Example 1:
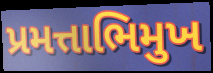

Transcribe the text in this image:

પ્રમત્તાભિમુખ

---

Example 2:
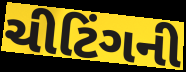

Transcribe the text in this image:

ચીટિંગની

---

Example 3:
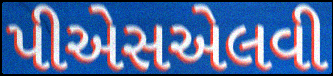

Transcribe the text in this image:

પીએસએલવી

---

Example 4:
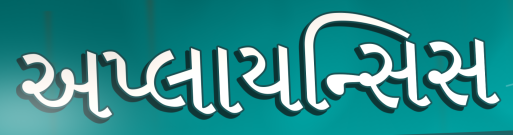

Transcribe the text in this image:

અપ્લાયન્સિસ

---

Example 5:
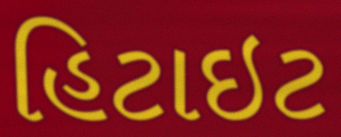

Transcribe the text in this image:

હિટાઇટ